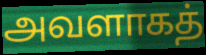
அவளாகத்